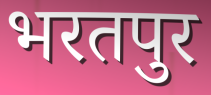
भरतपुर